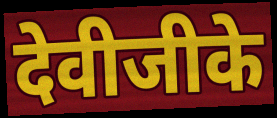
देवीजीके